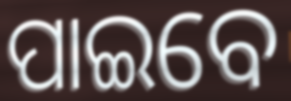
ପାଇବେ